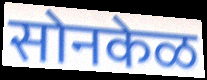
सोनकेळ